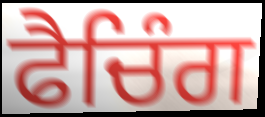
ਫੈਚਿੰਗ